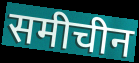
समीचीन